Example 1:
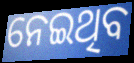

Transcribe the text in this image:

ନେଇଥିବ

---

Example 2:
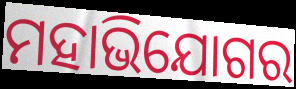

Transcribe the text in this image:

ମହାଭିଯୋଗର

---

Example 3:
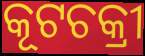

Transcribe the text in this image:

କୂଟଚକ୍ରୀ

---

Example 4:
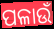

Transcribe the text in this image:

ପଳାଉଁ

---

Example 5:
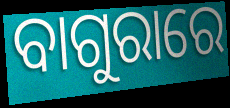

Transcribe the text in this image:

ବାଗୁରାରେ